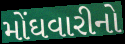
મોંઘવારીનો